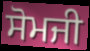
ਸੋਮਜੀ